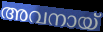
അവനായ്